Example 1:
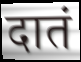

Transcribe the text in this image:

दातं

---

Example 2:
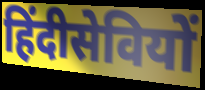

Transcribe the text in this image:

हिंदीसेवियों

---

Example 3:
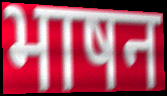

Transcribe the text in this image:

भाषन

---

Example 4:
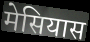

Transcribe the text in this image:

मेसियास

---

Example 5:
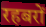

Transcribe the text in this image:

रहबरों